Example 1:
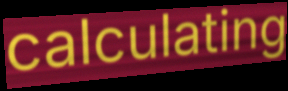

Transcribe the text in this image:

calculating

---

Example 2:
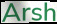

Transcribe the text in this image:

Arsh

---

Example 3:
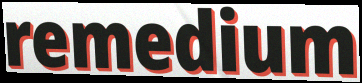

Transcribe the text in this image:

remedium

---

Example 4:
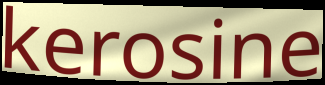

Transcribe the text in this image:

kerosine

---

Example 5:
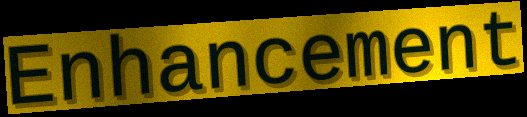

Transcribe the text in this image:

Enhancement